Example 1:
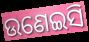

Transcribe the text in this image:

ଉଣେଇସି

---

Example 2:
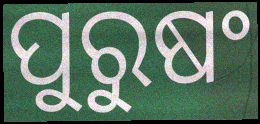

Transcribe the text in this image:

ପୁରୁଷଂ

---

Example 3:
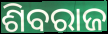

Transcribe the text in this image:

ଶିବରାଜ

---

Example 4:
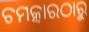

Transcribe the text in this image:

ଚମତ୍କାରଠାରୁ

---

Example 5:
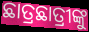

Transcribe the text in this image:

ଛାତ୍ରଛାତ୍ରୀଙ୍କୁ